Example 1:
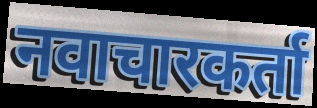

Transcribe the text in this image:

नवाचारकर्ता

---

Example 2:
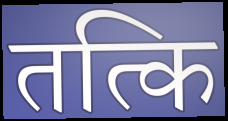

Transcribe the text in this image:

तत्कि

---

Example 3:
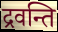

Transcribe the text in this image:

द्रवन्ति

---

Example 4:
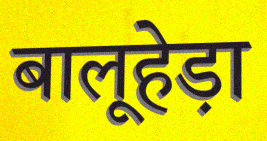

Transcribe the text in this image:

बालूहेड़ा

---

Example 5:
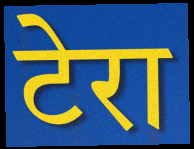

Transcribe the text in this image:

टेरा